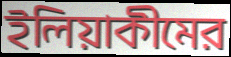
ইলিয়াকীমের